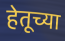
हेतूच्या